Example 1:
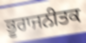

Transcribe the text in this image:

ਭੂਰਾਜਨੀਤਕ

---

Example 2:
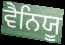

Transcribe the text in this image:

ਵੈਨਿਯੂ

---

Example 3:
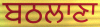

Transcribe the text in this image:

ਬਠਲਾਣਾ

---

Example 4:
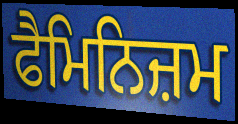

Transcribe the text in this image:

ਫੈਮਿਨਿਜ਼ਮ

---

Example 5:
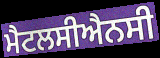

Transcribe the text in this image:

ਮੈਟਲਸੀਐਨਸੀ